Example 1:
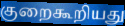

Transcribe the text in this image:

குறைகூறியது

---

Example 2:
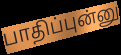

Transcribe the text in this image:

பாதிப்புன்னு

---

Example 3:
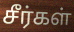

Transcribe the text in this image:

சீர்கள்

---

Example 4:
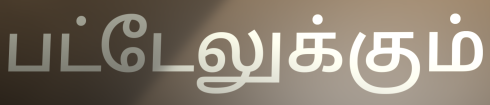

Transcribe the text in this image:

பட்டேலுக்கும்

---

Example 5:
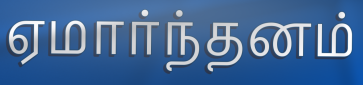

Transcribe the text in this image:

ஏமார்ந்தனம்